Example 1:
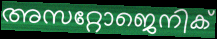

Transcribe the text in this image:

അസറ്റോജെനിക്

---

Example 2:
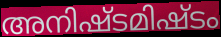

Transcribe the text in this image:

അനിഷ്ടമിഷ്ടം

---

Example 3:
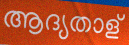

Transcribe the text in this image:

ആദ്യതാള്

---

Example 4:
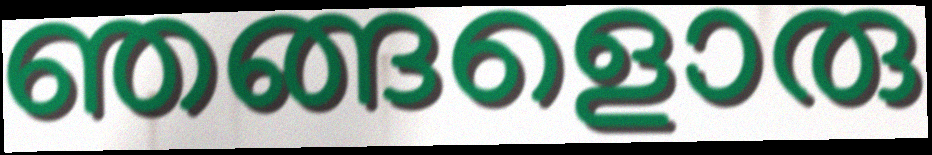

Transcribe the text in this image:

ഞങ്ങളൊരു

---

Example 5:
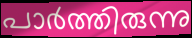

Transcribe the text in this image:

പാർത്തിരുന്നു